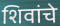
शिवांचे